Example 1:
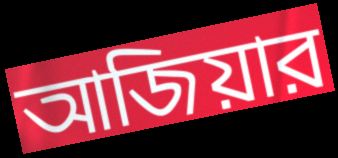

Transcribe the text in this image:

আজিয়ার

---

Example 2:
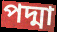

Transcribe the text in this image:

পদ্মা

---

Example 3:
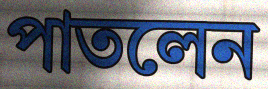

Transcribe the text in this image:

পাতলেন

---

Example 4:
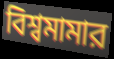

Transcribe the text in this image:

বিশ্বমামার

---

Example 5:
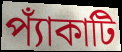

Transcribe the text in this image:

প্যাঁকাটি